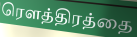
ரௌத்திரத்தை